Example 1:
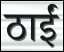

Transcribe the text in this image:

ठाईं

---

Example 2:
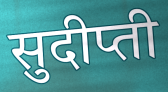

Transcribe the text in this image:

सुदीप्ती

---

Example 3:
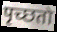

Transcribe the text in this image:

पृच्छतो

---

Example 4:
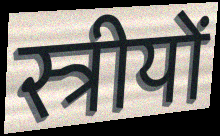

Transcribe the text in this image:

स्त्रीयों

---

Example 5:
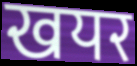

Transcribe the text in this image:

खयर